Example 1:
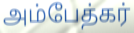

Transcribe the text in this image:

அம்பேத்கர்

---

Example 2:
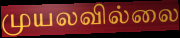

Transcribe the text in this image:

முயலவில்லை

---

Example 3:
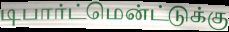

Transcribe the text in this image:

டிபார்ட்மென்ட்டுக்கு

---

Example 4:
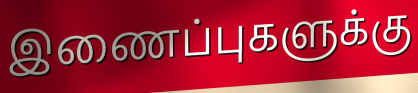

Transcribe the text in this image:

இணைப்புகளுக்கு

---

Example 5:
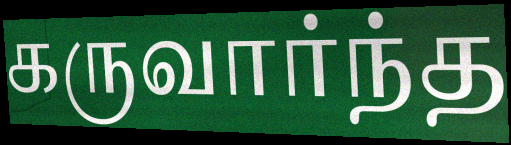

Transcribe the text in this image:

கருவார்ந்த